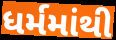
ધર્મમાંથી